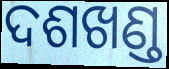
ଦଶଖଣ୍ଡ